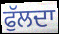
ਫੁੱਲਦਾ